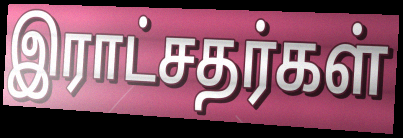
இராட்சதர்கள்